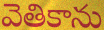
వెతికాను